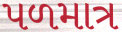
પળમાત્ર